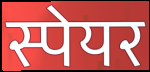
स्पेयर